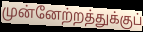
முன்னேற்றத்துக்குப்